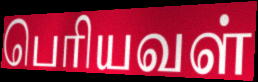
பெரியவள்